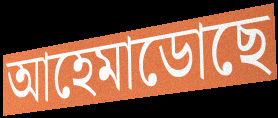
আহেমাডোছে